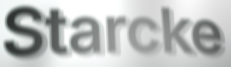
Starcke